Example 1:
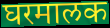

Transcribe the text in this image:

घरमालक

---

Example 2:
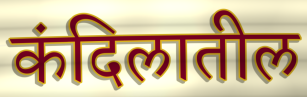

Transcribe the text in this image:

कंदिलातील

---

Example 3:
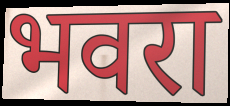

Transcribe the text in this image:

भवरा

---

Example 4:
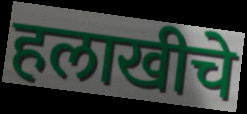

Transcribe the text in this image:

हलाखीचे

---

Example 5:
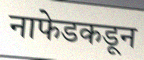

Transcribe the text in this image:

नाफेडकडून